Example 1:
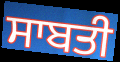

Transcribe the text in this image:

ਸਾਬਤੀ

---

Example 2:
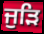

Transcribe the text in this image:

ਜੁੜਿ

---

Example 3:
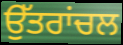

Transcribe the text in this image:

ਉੱਤਰਾਂਚਲ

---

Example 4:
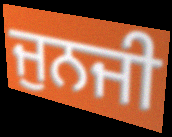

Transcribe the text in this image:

ਜੁਨਜੀ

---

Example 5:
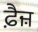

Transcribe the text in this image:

ਫ਼ੈਜ਼